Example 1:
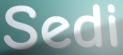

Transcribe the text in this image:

Sedi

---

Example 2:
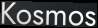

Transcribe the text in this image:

Kosmos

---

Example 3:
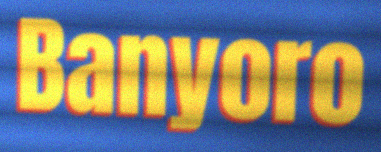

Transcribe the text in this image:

Banyoro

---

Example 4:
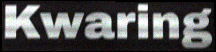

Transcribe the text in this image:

Kwaring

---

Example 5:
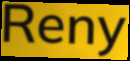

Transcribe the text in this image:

Reny